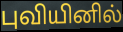
புவியினில்